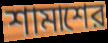
শামাশের